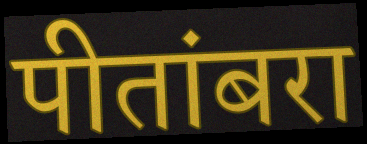
पीतांबरा